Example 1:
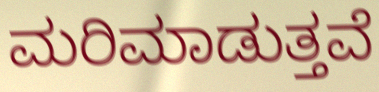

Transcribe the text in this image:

ಮರಿಮಾಡುತ್ತವೆ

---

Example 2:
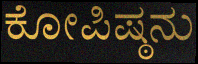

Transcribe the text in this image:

ಕೋಪಿಷ್ಠನು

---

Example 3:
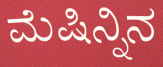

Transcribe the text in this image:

ಮೆಷಿನ್ನಿನ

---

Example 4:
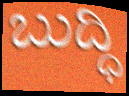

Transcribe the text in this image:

ಬುದ್ಧಿ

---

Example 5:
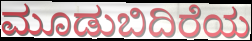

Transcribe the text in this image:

ಮೂಡುಬಿದಿರೆಯ